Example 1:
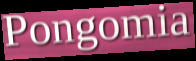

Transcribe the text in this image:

Pongomia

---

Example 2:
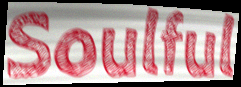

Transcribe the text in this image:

Soulful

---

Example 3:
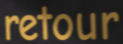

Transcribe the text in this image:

retour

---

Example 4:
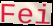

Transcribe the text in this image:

Fei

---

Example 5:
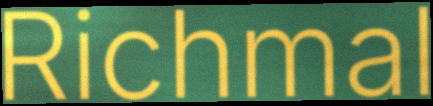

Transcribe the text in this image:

Richmal